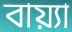
বায়্যা